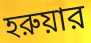
হরুয়ার